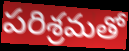
పరిశ్రమతో